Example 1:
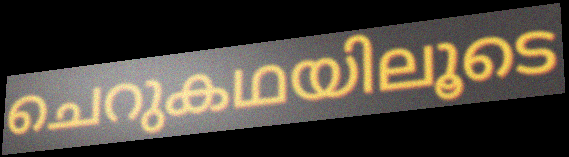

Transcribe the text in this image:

ചെറുകഥയിലൂടെ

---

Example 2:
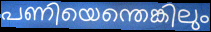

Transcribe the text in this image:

പണിയെന്തെങ്കിലും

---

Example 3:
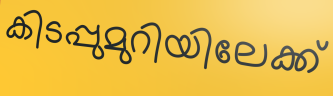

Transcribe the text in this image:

കിടപ്പുമുറിയിലേക്ക്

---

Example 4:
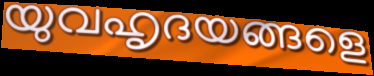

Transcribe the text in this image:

യുവഹൃദയങ്ങളെ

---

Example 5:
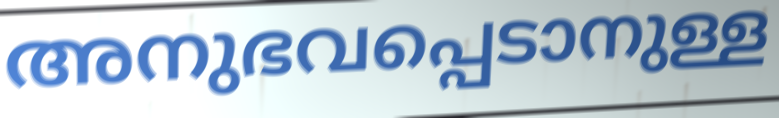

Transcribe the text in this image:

അനുഭവപ്പെടാനുള്ള